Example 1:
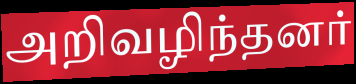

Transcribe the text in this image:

அறிவழிந்தனர்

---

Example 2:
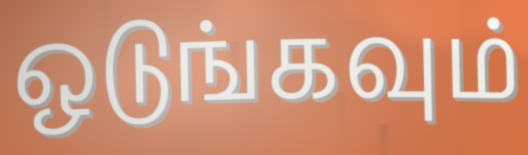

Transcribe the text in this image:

ஒடுங்கவும்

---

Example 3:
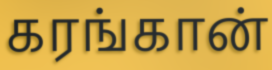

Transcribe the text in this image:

கரங்கான்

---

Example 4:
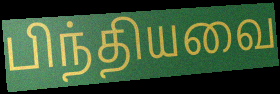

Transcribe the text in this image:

பிந்தியவை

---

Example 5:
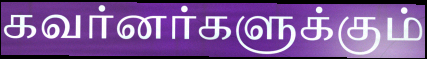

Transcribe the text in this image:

கவர்னர்களுக்கும்